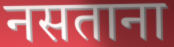
नसताना